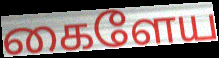
கைளேய